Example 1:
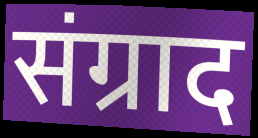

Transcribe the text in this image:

संग्राद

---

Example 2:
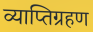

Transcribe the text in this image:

व्याप्तिग्रहण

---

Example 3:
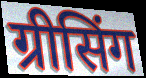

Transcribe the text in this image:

ग्रीसिंग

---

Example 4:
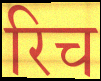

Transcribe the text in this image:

रिच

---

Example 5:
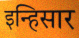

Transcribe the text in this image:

इन्हिसार